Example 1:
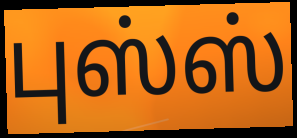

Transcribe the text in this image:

புஸ்ஸ்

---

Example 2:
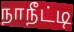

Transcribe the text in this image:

நாநீட்டி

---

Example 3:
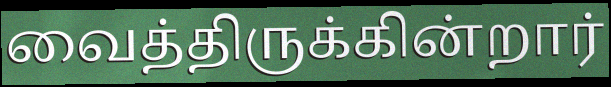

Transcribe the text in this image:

வைத்திருக்கின்றார்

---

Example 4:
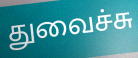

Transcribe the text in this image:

துவைச்சு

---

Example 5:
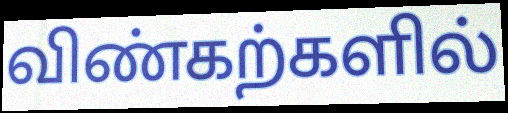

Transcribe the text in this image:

விண்கற்களில்